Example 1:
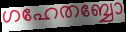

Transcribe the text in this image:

ഗഹേതബ്ബോ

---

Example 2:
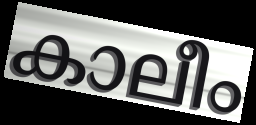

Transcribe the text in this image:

കാലീം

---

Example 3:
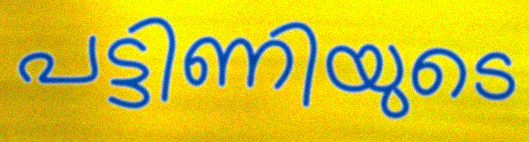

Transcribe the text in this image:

പട്ടിണിയുടെ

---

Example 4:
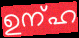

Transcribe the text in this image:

ഉന്ഹ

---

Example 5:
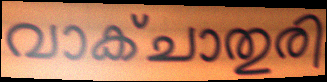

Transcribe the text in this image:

വാക്ചാതുരി